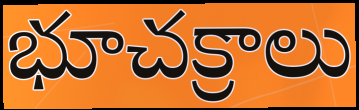
భూచక్రాలు